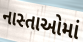
નાસ્તાઓમાં